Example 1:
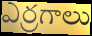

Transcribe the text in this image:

ఎర్రగాలు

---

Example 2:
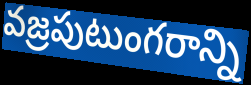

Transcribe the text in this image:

వజ్రపుటుంగరాన్ని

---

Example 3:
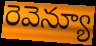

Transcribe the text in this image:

రెవెన్యూ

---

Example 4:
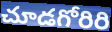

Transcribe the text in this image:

చూడగోరిరి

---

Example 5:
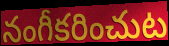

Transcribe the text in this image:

నంగీకరించుట